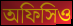
অফিসিও